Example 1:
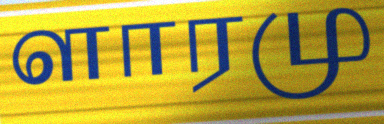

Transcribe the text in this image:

ளாரமு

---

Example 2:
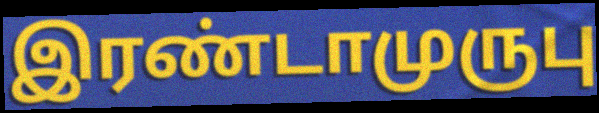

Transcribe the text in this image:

இரண்டாமுருபு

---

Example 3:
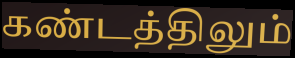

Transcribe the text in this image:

கண்டத்திலும்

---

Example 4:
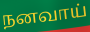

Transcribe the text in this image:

நனவாய்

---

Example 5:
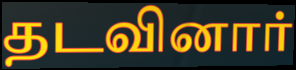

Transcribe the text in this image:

தடவினார்